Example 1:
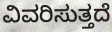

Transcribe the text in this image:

ವಿವರಿಸುತ್ತದೆ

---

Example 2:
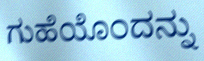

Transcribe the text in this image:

ಗುಹೆಯೊಂದನ್ನು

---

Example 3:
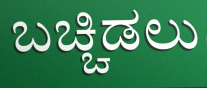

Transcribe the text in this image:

ಬಚ್ಚಿಡಲು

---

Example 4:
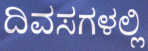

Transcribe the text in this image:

ದಿವಸಗಳಲ್ಲಿ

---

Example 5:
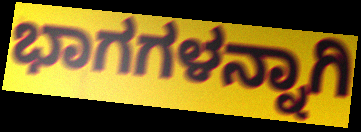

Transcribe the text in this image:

ಭಾಗಗಳನ್ನಾಗಿ